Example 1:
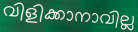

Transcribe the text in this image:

വിളിക്കാനാവില്ല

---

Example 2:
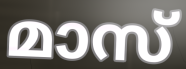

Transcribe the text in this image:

മാസ്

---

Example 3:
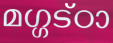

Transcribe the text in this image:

മഗ്ഗട്ഠാ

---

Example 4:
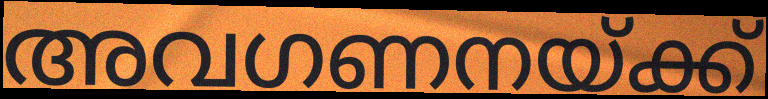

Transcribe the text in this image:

അവഗണനയ്ക്ക്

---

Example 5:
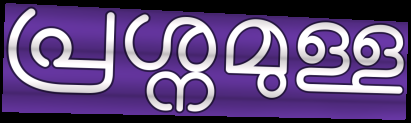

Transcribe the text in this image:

പ്രശ്നമുള്ള